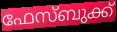
ഫേസ്ബുക്ക്